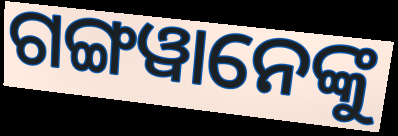
ଗଙ୍ଗୱାନେଙ୍କୁ